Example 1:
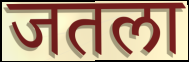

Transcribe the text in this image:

जतला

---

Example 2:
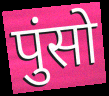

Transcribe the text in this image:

पुंसो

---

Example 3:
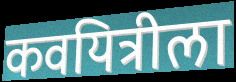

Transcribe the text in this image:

कवयित्रीला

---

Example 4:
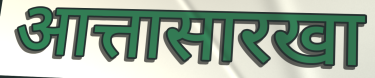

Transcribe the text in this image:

आत्तासारखा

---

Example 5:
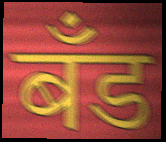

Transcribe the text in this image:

बॅंड